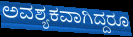
ಅವಶ್ಯಕವಾಗಿದ್ದರೂ